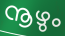
നൂഴും